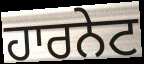
ਹਾਰਨੇਟ